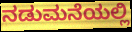
ನಡುಮನೆಯಲ್ಲಿ